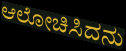
ಆಲೋಚಿಸಿದನು